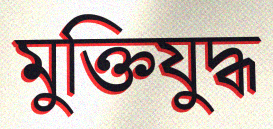
মুক্তিযুদ্ধ